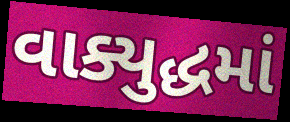
વાક્યુદ્ધમાં